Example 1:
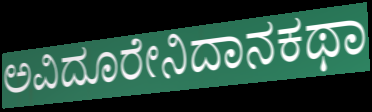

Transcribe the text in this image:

ಅವಿದೂರೇನಿದಾನಕಥಾ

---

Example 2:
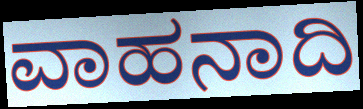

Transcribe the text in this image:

ವಾಹನಾದಿ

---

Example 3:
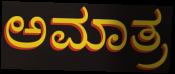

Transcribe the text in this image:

ಅಮಾತ್ರ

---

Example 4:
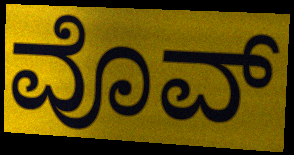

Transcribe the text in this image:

ವೊವ್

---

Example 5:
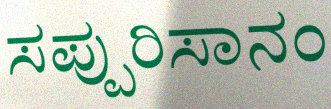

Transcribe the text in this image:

ಸಪ್ಪುರಿಸಾನಂ